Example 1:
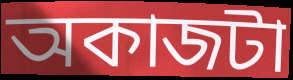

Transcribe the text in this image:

অকাজটা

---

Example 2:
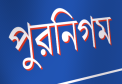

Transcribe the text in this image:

পুরনিগম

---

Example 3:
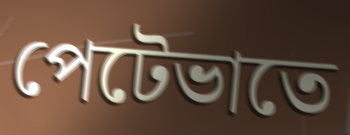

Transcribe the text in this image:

পেটেভাতে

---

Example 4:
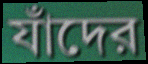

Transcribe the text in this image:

যাঁদের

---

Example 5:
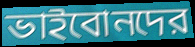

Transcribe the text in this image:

ভাইবোনদের